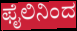
ಫೈಲಿನಿಂದ